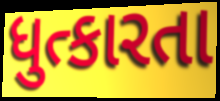
ધુત્કારતા